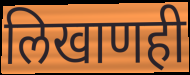
लिखाणही